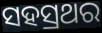
ସହସ୍ରଥର